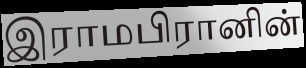
இராமபிரானின்